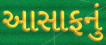
આસાફનું